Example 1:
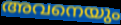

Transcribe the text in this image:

അവനെയും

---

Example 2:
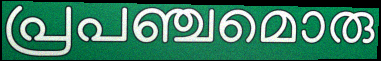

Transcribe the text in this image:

പ്രപഞ്ചമൊരു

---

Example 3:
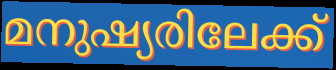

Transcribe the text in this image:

മനുഷ്യരിലേക്ക്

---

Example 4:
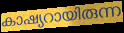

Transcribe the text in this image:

കാഷ്യറായിരുന്ന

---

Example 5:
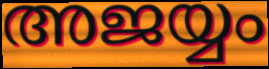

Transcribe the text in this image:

അജയ്യം